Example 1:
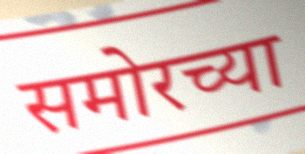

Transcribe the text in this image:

समोरच्या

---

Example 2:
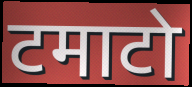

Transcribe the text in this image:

टमाटो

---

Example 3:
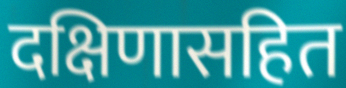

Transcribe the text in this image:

दक्षिणासहित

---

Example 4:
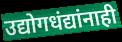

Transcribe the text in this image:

उद्योगधंद्यांनाही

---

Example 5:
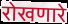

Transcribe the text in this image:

रोखणारे